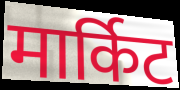
मार्किट